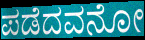
ಪಡೆದವನೋ